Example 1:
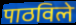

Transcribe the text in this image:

पाठविले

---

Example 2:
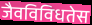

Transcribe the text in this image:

जैवविविधतेस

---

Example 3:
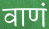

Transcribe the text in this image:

वाणं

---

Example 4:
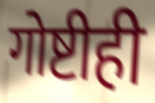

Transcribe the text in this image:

गोष्टीही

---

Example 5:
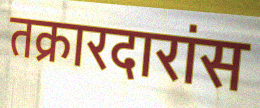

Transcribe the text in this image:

तक्रारदारांस